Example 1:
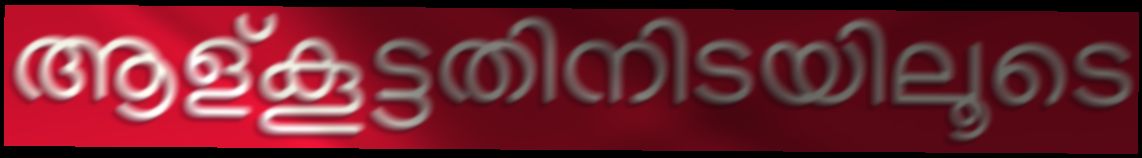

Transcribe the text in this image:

ആള്കൂട്ടതിനിടയിലൂടെ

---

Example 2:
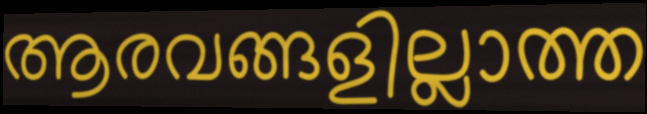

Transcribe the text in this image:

ആരവങ്ങളില്ലാത്ത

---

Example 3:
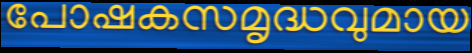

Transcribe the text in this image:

പോഷകസമൃദ്ധവുമായ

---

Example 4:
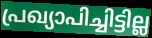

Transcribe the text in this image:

പ്രഖ്യാപിച്ചിട്ടില്ല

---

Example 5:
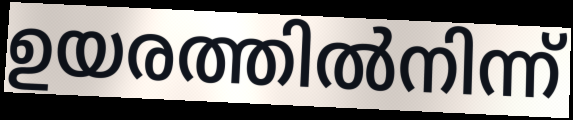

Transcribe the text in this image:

ഉയരത്തിൽനിന്ന്